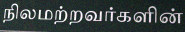
நிலமற்றவர்களின்